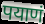
पयाणं